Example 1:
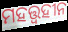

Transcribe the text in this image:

ମହତ୍ତ୍ବହୀନ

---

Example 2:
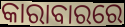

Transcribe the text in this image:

କାରାବାରରେ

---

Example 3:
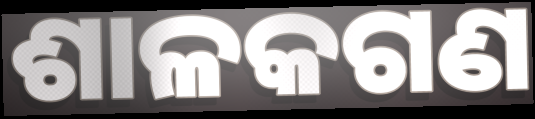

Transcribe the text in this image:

ଶାଳକଗଣ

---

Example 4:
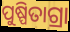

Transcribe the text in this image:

ପୁଷ୍ପିତାଗ୍ରା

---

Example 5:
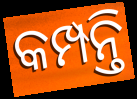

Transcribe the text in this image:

କମ୍ପନ୍ତି